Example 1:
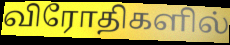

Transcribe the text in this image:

விரோதிகளில்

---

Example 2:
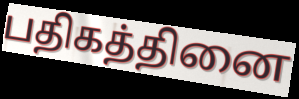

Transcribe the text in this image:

பதிகத்தினை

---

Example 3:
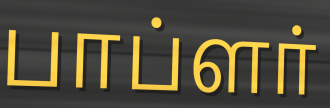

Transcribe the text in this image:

பாப்ளர்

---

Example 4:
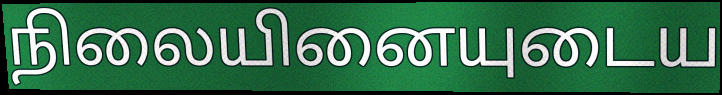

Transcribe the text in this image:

நிலையினையுடைய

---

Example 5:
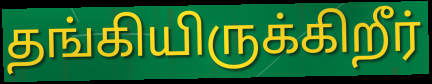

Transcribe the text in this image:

தங்கியிருக்கிறீர்